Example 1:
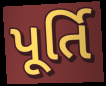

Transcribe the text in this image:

પૂર્તિ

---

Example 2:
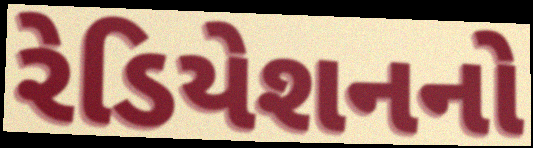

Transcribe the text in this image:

રેડિયેશનનો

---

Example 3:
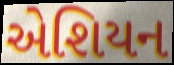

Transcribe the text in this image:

એશિયન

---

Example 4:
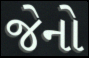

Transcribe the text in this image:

જેનો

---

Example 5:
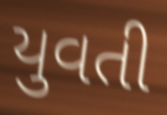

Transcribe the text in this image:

યુવતી